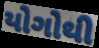
યોગોથી